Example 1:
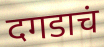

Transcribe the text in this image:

दगडाचं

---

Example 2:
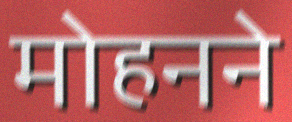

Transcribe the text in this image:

मोहनने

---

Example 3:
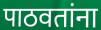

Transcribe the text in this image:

पाठवतांना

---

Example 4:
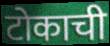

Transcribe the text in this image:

टोकाची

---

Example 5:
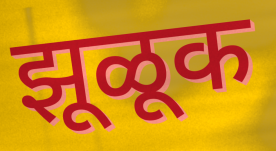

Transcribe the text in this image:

झूळूक